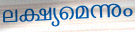
ലക്ഷ്യമെന്നും